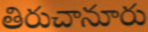
తిరుచానూరు